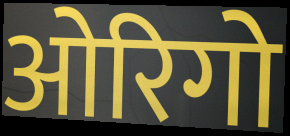
ओरिगो